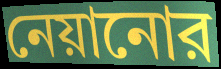
নেয়ানোর